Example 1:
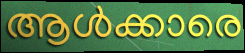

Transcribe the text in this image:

ആൾക്കാരെ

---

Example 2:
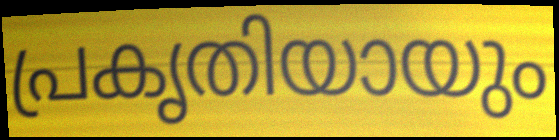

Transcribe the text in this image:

പ്രകൃതിയായും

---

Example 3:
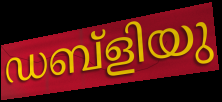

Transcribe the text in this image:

ഡബ്ളിയു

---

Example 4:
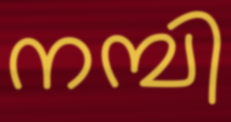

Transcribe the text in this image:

നമ്പി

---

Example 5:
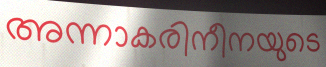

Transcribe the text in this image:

അന്നാകരിനീനയുടെ